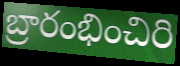
బ్రారంభించిరి